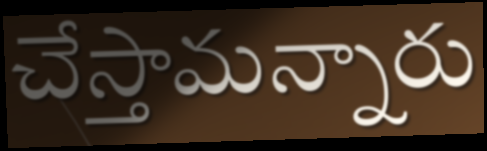
చేస్తామన్నారు